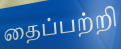
தைப்பற்றி